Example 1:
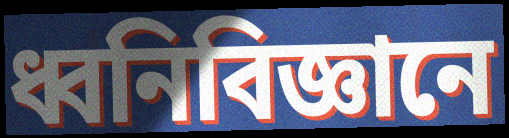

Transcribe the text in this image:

ধ্বনিবিজ্ঞানে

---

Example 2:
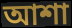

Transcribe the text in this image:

আশা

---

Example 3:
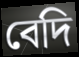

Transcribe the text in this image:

বেদি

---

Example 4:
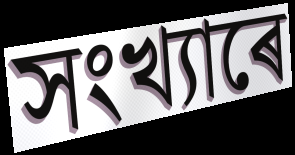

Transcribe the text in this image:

সংখ্যাৰে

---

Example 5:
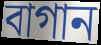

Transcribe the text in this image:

বাগান